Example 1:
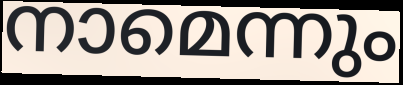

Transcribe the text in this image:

നാമെന്നും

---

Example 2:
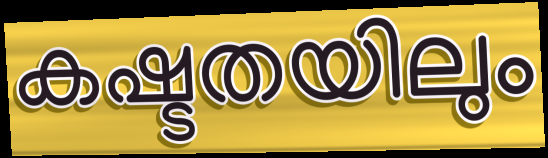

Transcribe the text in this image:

കഷ്ടതയിലും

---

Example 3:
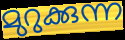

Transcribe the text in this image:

മുറുക്കുന്ന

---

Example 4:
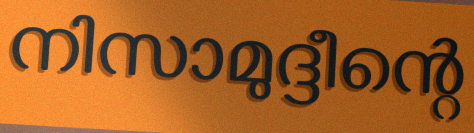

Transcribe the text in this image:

നിസാമുദ്ദീന്റെ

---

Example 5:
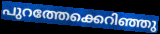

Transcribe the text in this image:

പുറത്തേക്കെറിഞ്ഞു